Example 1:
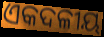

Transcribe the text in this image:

ଏକଦଳୀୟ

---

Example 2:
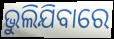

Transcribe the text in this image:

ଭୁଲିଯିବାରେ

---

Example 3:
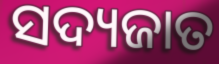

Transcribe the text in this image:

ସଦ୍ୟଜାତ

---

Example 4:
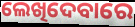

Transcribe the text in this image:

ଲେଖିଦେବାରେ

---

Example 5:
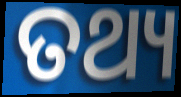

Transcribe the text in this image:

ତଥ୍ୟ